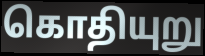
கொதியுறு